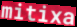
mitixa